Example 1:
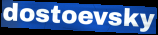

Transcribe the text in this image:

dostoevsky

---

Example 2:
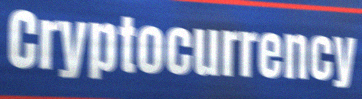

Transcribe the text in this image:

Cryptocurrency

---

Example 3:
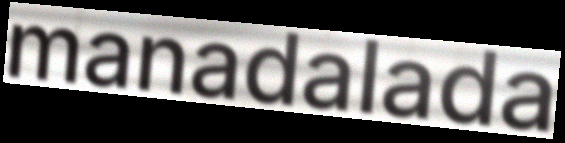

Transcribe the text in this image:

manadalada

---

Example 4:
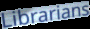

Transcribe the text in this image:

Librarians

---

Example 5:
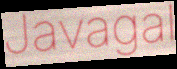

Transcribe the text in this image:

Javagal